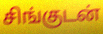
சிங்குடன்